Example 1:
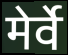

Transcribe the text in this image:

मेर्वे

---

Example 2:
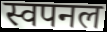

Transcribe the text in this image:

स्वपनल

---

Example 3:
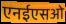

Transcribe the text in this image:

एनईएसओ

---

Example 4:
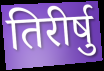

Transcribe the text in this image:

तिरीर्षु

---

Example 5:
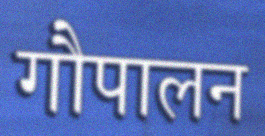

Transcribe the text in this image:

गौपालन